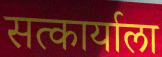
सत्कार्याला